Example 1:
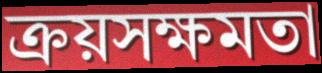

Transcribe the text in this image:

ক্রয়সক্ষমতা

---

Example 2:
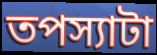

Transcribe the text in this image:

তপস্যাটা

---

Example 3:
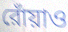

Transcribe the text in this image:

রোঁয়াও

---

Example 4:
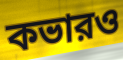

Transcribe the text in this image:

কভারও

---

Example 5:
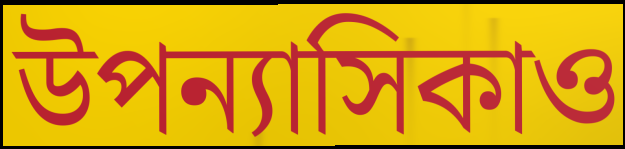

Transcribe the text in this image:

উপন্যাসিকাও